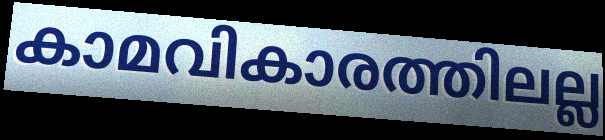
കാമവികാരത്തിലല്ല